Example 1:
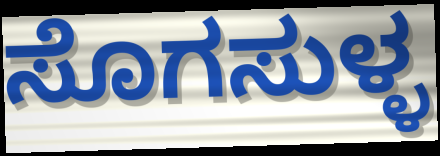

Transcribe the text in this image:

ಸೊಗಸುಳ್ಳ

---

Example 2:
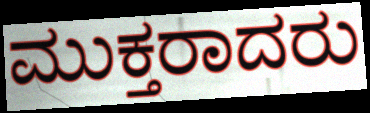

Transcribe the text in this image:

ಮುಕ್ತರಾದರು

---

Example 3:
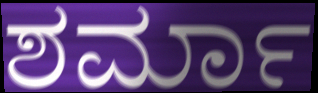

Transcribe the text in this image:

ಶರ್ಮಾ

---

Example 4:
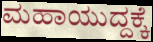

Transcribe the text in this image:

ಮಹಾಯುದ್ದಕ್ಕೆ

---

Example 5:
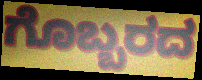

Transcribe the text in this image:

ಗೊಬ್ಬರದ